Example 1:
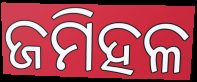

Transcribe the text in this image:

ଜମିହଳ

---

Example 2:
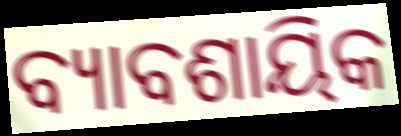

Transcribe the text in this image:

ବ୍ୟାବଶାୟିକ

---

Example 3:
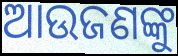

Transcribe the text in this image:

ଆଉଜଣଙ୍କୁ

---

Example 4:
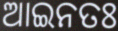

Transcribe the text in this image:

ଆଇନତଃ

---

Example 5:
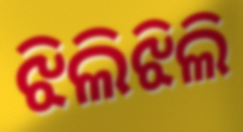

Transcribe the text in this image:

ଝିଲିଝିଲି